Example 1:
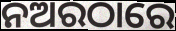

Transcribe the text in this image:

ନଅରଠାରେ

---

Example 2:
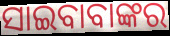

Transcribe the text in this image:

ସାଇବାବାଙ୍କର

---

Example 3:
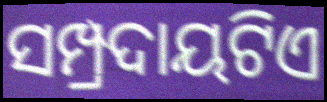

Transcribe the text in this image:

ସମ୍ପ୍ରଦାୟଟିଏ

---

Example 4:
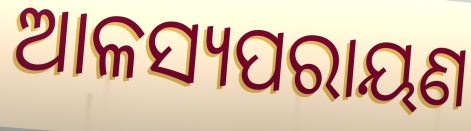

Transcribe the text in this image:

ଆଳସ୍ୟପରାୟଣ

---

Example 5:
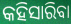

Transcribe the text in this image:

କହିସାରିବା